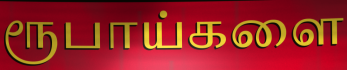
ரூபாய்களை